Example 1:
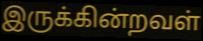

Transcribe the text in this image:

இருக்கின்றவள்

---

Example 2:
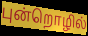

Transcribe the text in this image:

புன்றொழில்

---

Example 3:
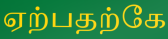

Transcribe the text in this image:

ஏற்பதற்கே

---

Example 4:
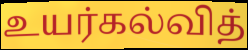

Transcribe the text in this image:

உயர்கல்வித்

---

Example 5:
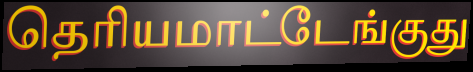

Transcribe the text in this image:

தெரியமாட்டேங்குது